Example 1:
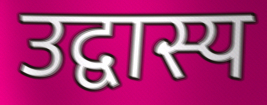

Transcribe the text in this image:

उद्वास्य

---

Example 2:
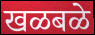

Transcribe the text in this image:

खळबळे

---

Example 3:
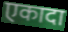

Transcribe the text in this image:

एकादा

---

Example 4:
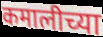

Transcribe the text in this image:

कमालीच्या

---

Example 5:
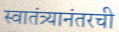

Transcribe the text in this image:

स्वातंत्र्यानंतरची